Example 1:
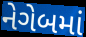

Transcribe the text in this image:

નેગેબમાં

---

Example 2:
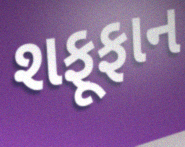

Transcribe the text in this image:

શફૂફાન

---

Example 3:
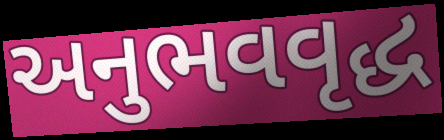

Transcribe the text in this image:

અનુભવવૃદ્ધ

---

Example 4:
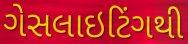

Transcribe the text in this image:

ગેસલાઇટિંગથી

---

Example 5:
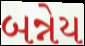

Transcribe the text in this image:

બન્નેય